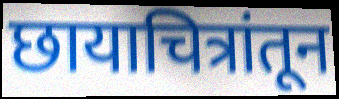
छायाचित्रांतून